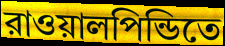
রাওয়ালপিন্ডিতে